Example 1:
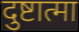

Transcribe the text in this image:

दुष्टात्मा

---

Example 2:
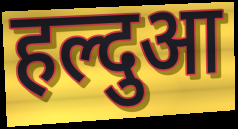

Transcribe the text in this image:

हल्दुआ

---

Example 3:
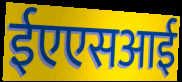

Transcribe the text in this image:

ईएएसआई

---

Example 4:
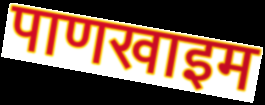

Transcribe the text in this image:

पाणखाइम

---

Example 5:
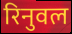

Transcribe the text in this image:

रिनुवल